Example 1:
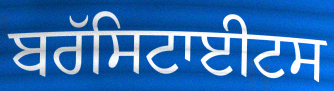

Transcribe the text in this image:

ਬਰੱਸਿਟਾਈਟਸ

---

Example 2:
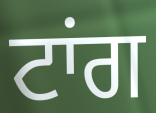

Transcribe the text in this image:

ਟਾਂਗ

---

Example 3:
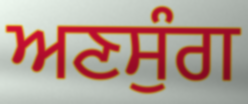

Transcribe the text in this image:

ਅਣਸੁੰਗ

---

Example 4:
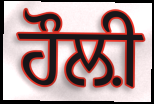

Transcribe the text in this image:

ਹੌਲ਼ੀ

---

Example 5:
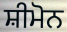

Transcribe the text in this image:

ਸ਼ੀਮੋਨ